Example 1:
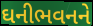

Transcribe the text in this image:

ઘનીભવનને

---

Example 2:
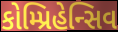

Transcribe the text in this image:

કોમ્પ્રિહેન્સિવ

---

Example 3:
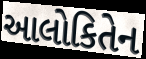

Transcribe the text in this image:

આલોકિતેન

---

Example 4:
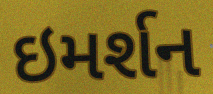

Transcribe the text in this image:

ઇમર્શન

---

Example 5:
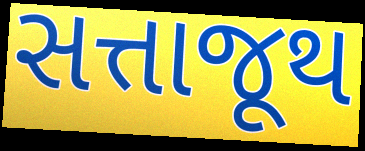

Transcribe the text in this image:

સત્તાજૂથ